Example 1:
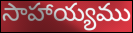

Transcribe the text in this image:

సాహాయ్యము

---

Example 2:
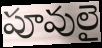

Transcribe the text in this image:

పూవులై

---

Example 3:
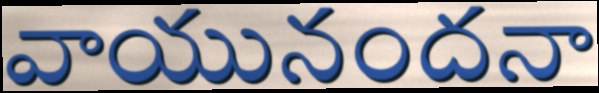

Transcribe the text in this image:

వాయునందనా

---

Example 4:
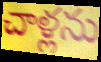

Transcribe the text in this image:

చాళ్లను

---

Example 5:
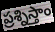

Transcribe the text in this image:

ప్రశ్నిస్తాం